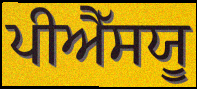
ਪੀਐੱਸਯੂ